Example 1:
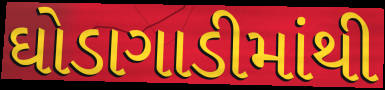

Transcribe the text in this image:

ઘોડાગાડીમાંથી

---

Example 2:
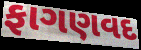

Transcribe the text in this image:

ફાગણવદ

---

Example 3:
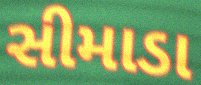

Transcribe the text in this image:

સીમાડા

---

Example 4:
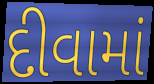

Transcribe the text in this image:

દીવામાં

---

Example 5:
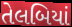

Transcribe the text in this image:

તેલબિયાં